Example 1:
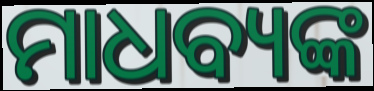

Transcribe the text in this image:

ମାଧବ୍ୟଙ୍କ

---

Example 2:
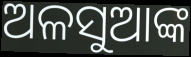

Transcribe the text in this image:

ଅଳସୁଆଙ୍କ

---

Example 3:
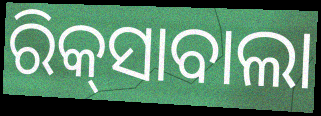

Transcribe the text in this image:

ରିକ୍‍ସାବାଲା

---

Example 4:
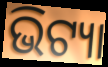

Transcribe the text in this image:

ଭିଟ୍ୟା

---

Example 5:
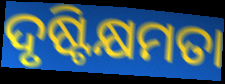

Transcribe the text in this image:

ଦୃଷ୍ଟିକ୍ଷମତା